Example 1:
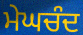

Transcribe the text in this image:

ਮੇਘਚੰਦ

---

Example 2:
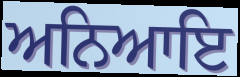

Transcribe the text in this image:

ਅਨਿਆਇ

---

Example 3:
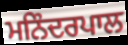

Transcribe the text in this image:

ਮਨਿੰਦਰਪਾਲ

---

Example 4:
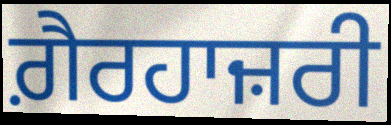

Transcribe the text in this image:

ਗ਼ੈਰਹਾਜ਼ਰੀ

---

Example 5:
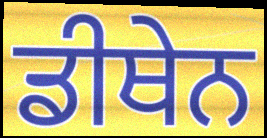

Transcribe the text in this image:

ਡੀਥੇਨ